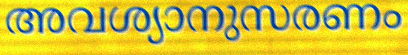
അവശ്യാനുസരണം